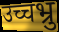
उच्चभ्रु